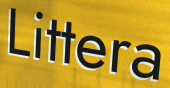
Littera